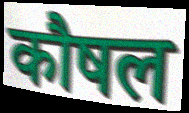
कौषल